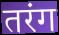
तरंग